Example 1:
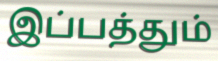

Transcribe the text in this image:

இப்பத்தும்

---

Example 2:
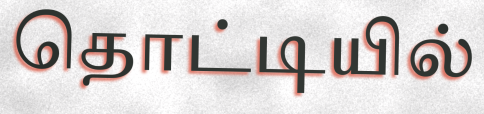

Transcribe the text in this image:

தொட்டியில்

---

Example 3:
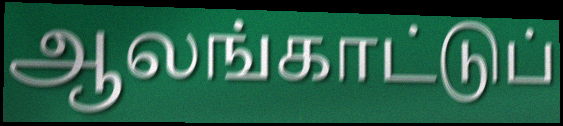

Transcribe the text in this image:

ஆலங்காட்டுப்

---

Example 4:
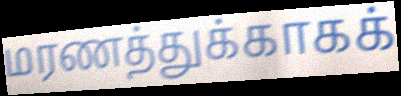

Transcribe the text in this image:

மரணத்துக்காகக்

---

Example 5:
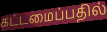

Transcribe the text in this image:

கட்டமைப்பதில்